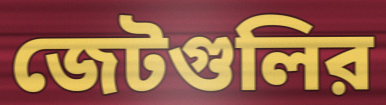
জেটগুলির